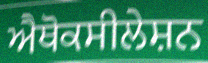
ਐਥੋਕਸੀਲੇਸ਼ਨ